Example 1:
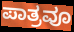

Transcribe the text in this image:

ಪಾತ್ರವೂ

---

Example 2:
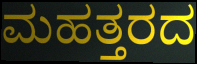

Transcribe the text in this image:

ಮಹತ್ತರದ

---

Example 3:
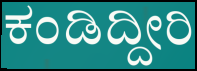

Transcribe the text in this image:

ಕಂಡಿದ್ದೀರಿ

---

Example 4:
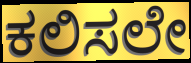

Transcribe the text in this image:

ಕಲಿಸಲೇ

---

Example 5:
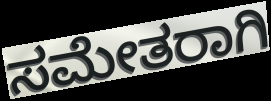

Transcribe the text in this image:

ಸಮೇತರಾಗಿ